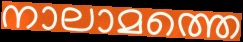
നാലാമത്തെ